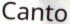
Canto